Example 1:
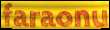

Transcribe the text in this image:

faraonu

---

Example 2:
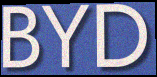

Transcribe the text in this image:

BYD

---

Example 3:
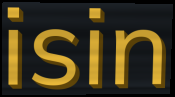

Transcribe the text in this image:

isin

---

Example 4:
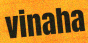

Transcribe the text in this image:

vinaha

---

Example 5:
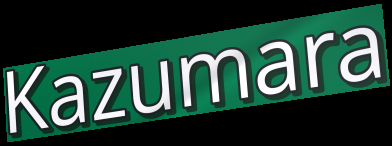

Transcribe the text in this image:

Kazumara